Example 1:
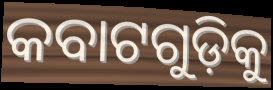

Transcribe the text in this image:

କବାଟଗୁଡ଼ିକୁ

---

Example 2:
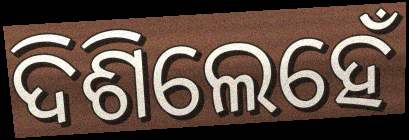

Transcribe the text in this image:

ଦିଶିଲେହେଁ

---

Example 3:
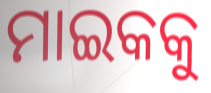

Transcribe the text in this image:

ମାଇକକୁ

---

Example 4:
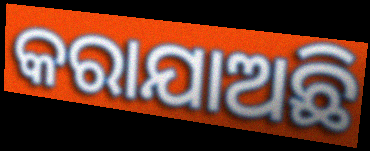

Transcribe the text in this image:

କରାଯାଅଛି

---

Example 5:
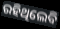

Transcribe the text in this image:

ରହିଥିଲେବି